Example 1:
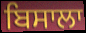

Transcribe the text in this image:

ਬਿਸਾਲਾ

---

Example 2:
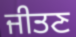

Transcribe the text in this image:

ਜੀਤਣ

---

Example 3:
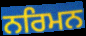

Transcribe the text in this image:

ਨਰਿਮਨ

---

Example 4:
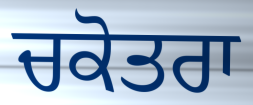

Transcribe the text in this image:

ਚਕੋਤਰਾ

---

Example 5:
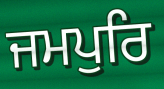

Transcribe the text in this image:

ਜਮਪੁਰਿ